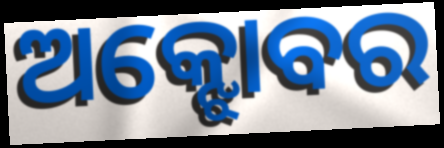
ଅକ୍ଝୋବର